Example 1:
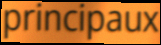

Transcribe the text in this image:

principaux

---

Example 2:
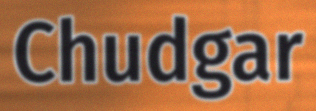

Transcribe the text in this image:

Chudgar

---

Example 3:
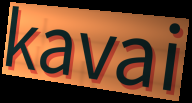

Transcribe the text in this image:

kavai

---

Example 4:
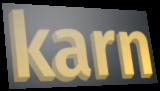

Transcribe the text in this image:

karn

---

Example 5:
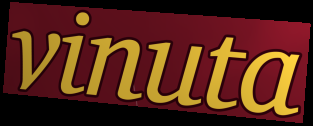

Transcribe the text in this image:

vinuta